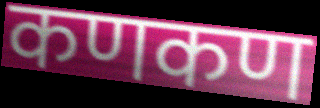
कणकण